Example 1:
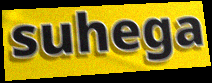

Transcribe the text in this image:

suhega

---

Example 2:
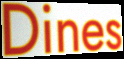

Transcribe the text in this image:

Dines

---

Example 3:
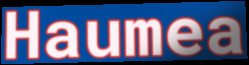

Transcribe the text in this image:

Haumea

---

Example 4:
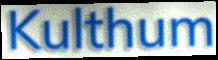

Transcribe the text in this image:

Kulthum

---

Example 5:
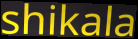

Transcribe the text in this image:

shikala